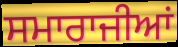
ਸਮਾਰਾਜੀਆਂ